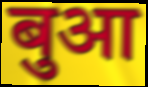
बुआ